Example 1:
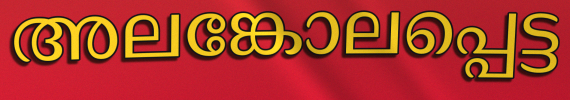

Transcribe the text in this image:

അലങ്കോലപ്പെട്ട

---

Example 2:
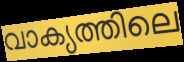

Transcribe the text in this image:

വാക്യത്തിലെ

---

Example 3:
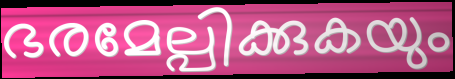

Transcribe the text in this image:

ഭരമേല്പിക്കുകയും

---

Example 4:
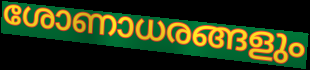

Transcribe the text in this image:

ശോണാധരങ്ങളും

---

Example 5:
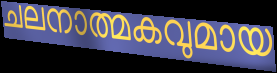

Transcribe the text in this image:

ചലനാത്മകവുമായ